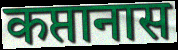
कप्तानास